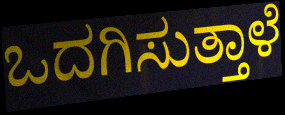
ಒದಗಿಸುತ್ತಾಳೆ